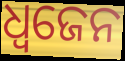
ଧ୍ଵଜେନ